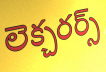
లెక్చరర్స్